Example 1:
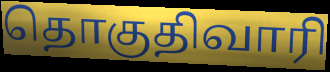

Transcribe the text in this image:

தொகுதிவாரி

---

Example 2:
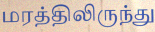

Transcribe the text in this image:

மரத்திலிருந்து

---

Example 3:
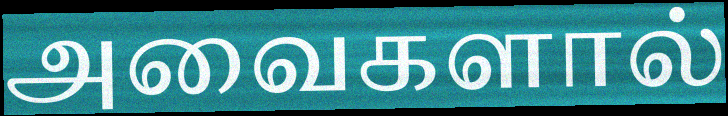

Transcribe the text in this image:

அவைகளால்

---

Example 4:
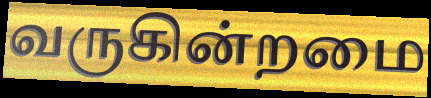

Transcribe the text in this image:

வருகின்றமை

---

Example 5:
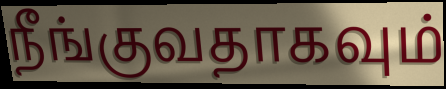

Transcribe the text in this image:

நீங்குவதாகவும்